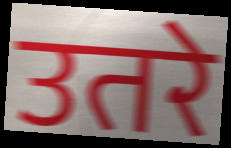
उतरे